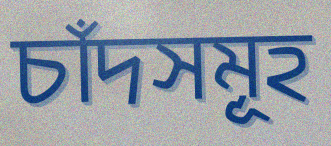
চাঁদসমূহ